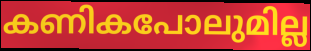
കണികപോലുമില്ല